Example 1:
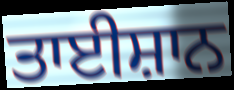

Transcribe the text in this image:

ਤਾਈਸ਼ਾਨ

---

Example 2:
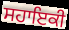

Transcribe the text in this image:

ਸਹਾਇਕੀ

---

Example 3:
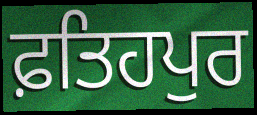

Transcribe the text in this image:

ਫ਼ਤਿਹਪੁਰ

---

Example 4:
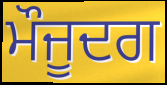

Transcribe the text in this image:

ਮੌਜੂਦਗ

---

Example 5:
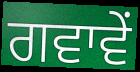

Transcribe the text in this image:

ਗਵਾਵੇਂ